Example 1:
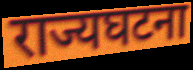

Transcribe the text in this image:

राज्यघटना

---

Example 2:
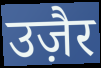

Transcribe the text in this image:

उज़ैर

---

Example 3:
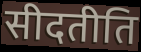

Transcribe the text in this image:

सीदतीति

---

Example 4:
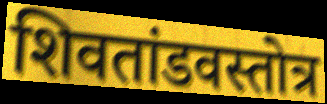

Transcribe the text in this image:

शिवतांडवस्तोत्र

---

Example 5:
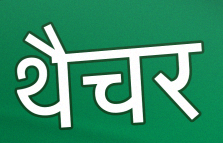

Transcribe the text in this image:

थैचर